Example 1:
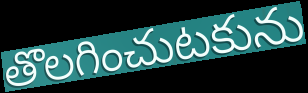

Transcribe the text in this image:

తొలగించుటకును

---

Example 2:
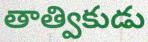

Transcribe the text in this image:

తాత్వికుడు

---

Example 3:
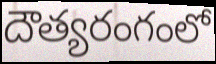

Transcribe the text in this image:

దౌత్యరంగంలో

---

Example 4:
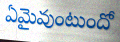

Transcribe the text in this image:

ఏమైవుంటుందో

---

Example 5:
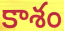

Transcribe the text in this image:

కాశం